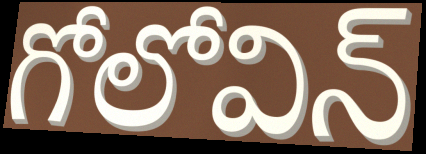
గోలోవిన్